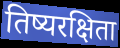
तिष्यरक्षिता